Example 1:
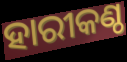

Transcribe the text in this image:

ହାରୀକଣ୍ଠ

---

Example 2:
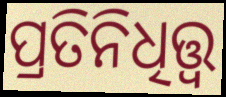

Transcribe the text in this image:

ପ୍ରତିନିଧିତ୍ତ୍ୱ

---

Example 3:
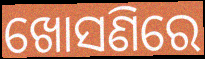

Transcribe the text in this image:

ଖୋସଣିରେ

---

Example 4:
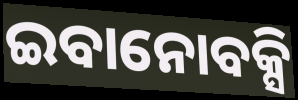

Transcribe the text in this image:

ଇବାନୋବକ୍ସି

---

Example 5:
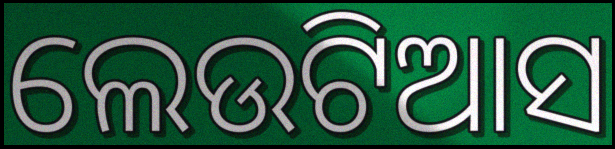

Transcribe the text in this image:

ଲେଉଟିଆସ